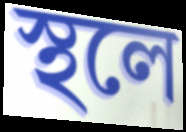
স্থলে